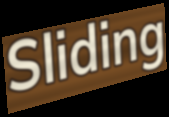
Sliding